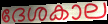
ദേശകാല